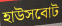
হাউসবোট